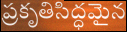
ప్రకృతిసిద్ధమైన